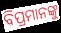
ବିପ୍ରମାନଙ୍କୁ